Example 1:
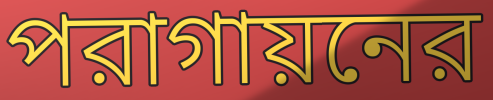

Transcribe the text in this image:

পরাগায়নের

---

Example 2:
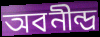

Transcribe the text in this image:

অবনীন্দ্র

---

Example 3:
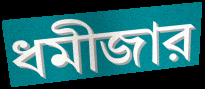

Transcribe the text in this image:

ধমীজার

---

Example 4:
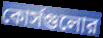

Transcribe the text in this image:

কোর্সগুলোর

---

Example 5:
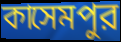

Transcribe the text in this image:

কাসেমপুর